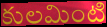
కులమింటి